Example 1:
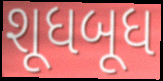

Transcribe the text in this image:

શૂધબૂધ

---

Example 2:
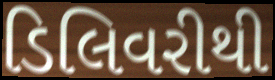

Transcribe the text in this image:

ડિલિવરીથી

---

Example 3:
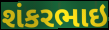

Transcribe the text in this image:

શંકરભાઇ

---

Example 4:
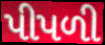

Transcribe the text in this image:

પીપળી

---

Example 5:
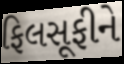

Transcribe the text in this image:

ફિલસૂફીને